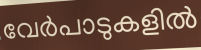
വേർപാടുകളിൽ